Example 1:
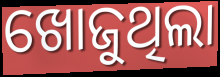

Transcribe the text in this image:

ଖୋଜୁଥିଲା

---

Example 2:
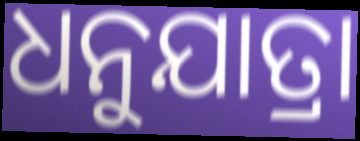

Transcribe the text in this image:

ଧନୁଯାତ୍ରା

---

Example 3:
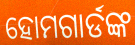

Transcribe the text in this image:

ହୋମଗାର୍ଡଙ୍କ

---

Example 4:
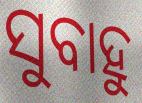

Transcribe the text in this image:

ସୁବାହୁ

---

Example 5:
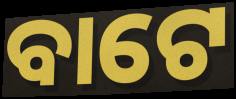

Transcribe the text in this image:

ବାଟେ